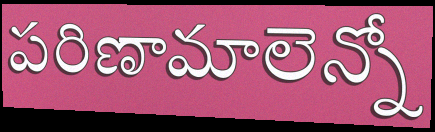
పరిణామాలెన్నో